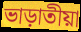
ভাড়াতীয়া